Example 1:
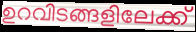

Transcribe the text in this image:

ഉറവിടങ്ങളിലേക്ക്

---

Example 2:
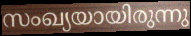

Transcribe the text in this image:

സംഖ്യയായിരുന്നു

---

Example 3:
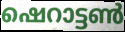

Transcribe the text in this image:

ഷെറാട്ടൺ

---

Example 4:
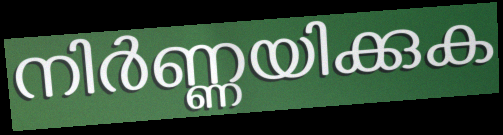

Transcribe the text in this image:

നിർണ്ണയിക്കുക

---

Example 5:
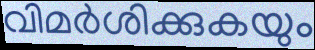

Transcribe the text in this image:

വിമർശിക്കുകയും